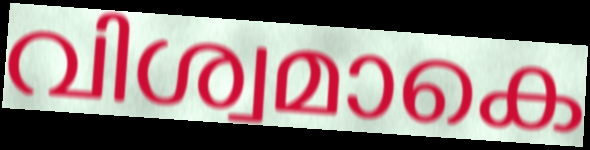
വിശ്വമാകെ